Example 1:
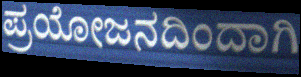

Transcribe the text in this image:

ಪ್ರಯೋಜನದಿಂದಾಗಿ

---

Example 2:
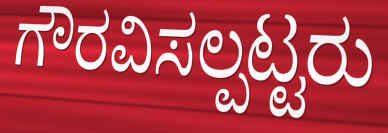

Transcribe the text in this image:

ಗೌರವಿಸಲ್ಪಟ್ಟರು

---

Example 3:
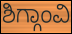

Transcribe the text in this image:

ಶಿಗ್ಗಾಂವಿ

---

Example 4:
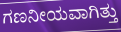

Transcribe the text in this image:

ಗಣನೀಯವಾಗಿತ್ತು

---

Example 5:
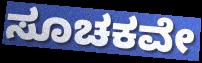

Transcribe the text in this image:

ಸೂಚಕವೇ